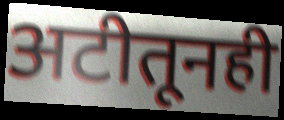
अटीतूनही